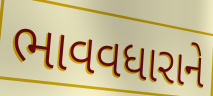
ભાવવધારાને